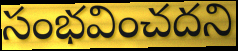
సంభవించదని